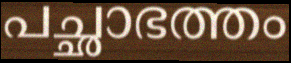
പച്ഛാഭത്തം